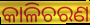
କାଳିଚରଣ